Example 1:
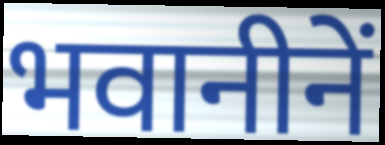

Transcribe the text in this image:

भवानीनें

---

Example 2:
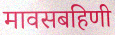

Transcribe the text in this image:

मावसबहिणी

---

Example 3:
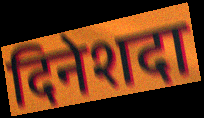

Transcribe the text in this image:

दिनेशदा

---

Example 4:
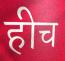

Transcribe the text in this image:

हीच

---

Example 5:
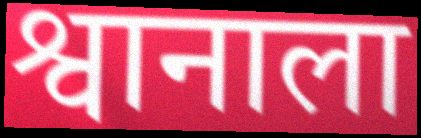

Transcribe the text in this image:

श्वानाला